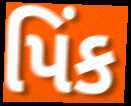
પિંક